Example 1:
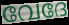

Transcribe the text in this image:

വേദേ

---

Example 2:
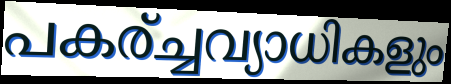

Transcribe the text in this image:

പകര്ച്ചവ്യാധികളും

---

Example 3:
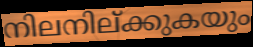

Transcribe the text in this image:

നിലനില്ക്കുകയും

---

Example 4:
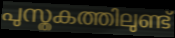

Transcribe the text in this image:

പുസ്തകത്തിലുണ്ട്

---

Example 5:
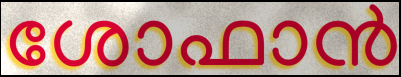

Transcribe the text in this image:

ശോഫാൻ